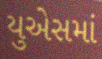
યુએસમાં